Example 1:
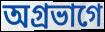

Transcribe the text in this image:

অগ্রভাগে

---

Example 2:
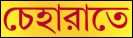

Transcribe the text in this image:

চেহারাতে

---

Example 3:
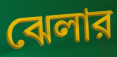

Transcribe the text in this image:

ঝেলার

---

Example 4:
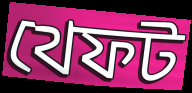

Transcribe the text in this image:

থেফট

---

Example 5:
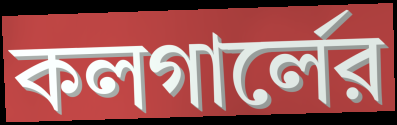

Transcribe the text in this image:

কলগার্লের